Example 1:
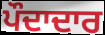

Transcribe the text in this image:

ਪੌਦਾਦਾਰ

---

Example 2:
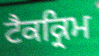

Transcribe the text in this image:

ਟੈਕਕ੍ਰਿਮ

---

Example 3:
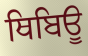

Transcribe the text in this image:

ਥਿਬਿਊ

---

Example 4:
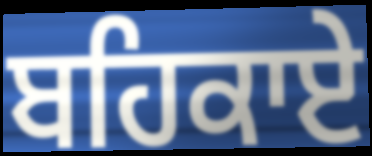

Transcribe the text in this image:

ਬਹਿਕਾਏ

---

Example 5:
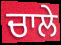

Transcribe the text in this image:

ਚਾਲੇ